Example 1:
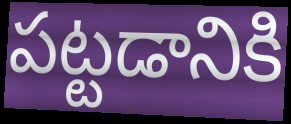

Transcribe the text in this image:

పట్టడానికి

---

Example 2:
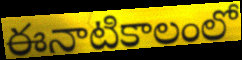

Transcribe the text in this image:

ఈనాటికాలంలో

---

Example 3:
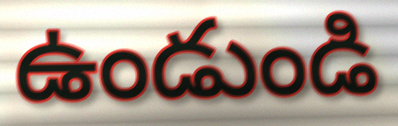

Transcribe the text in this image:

ఉండుండి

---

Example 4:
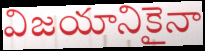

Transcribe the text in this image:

విజయానికైనా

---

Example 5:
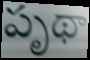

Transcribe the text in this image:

పృథా